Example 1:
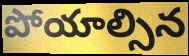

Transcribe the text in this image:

పోయాల్సిన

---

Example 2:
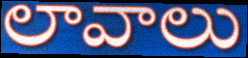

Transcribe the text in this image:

లావాలు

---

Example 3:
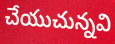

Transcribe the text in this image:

చేయుచున్నవి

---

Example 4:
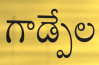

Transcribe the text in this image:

గాడ్పేల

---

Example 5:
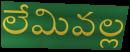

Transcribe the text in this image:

లేమివల్ల